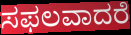
ಸಫಲವಾದರೆ